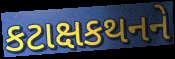
કટાક્ષકથનને